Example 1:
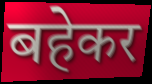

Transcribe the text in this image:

बहेकर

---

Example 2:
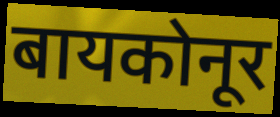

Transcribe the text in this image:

बायकोनूर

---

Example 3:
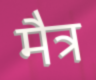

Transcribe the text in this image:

मैत्र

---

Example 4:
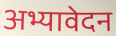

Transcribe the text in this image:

अभ्यावेदन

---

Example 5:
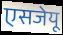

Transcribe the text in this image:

एसजेयू